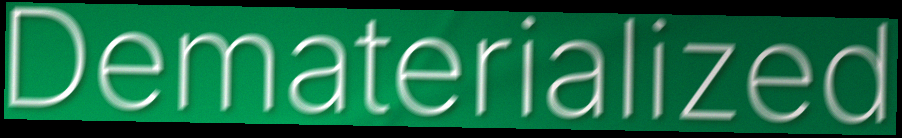
Dematerialized